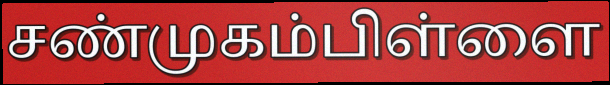
சண்முகம்பிள்ளை